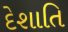
દેશાતિ